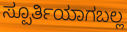
ಸ್ಪೂರ್ತಿಯಾಗಬಲ್ಲ